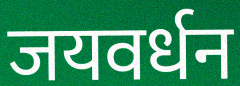
जयवर्धन